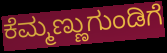
ಕೆಮ್ಮಣ್ಣುಗುಂಡಿಗೆ